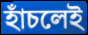
হাঁচলেই